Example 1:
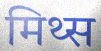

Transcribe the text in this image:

मिथ्स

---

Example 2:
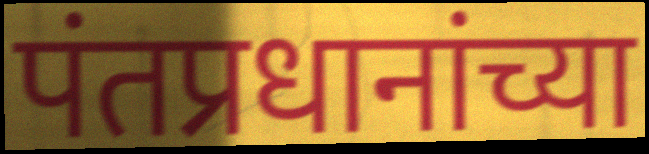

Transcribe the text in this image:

पंतप्रधानांच्या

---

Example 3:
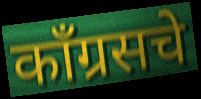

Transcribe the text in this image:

काँग्रसचे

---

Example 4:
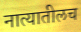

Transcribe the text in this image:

नात्यातीलच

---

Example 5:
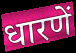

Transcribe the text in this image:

धारणें